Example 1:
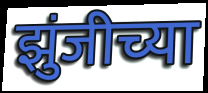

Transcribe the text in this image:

झुंजीच्या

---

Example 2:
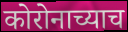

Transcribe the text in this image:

कोरोनाच्याच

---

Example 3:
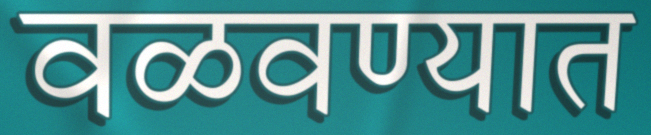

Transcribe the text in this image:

वळवण्यात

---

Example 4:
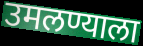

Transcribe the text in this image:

उमलण्याला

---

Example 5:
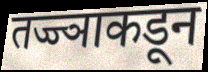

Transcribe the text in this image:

तज्ज्ञाकडून